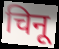
चिनू